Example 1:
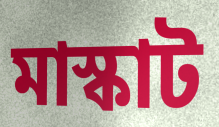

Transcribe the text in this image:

মাস্কাট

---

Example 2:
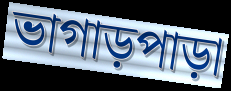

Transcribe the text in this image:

ভাগাড়পাড়া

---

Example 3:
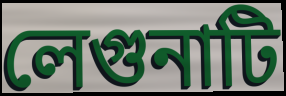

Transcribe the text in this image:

লেগুনাটি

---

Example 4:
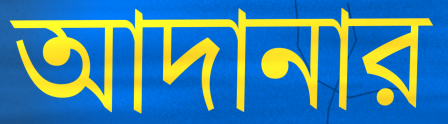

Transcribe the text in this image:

আদানার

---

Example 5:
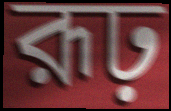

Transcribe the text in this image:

রূঢ়